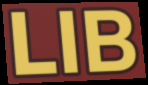
LIB